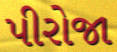
પીરોજા